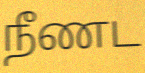
நீணட